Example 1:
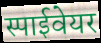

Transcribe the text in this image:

स्पाईवेयर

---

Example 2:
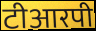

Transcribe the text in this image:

टीआरपी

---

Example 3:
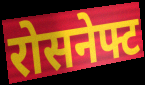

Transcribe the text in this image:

रोसनेफ्ट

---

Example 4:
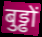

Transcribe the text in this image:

बुड्ढों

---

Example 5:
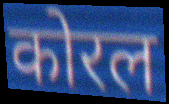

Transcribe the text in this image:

कोरल